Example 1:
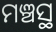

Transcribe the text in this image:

ମଞ୍ଚସ୍ଥ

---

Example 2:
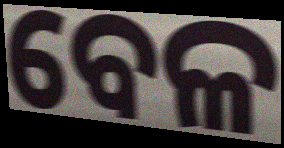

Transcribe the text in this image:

ବେଳ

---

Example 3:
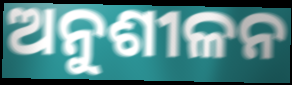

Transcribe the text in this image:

ଅନୁଶୀଳନ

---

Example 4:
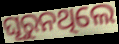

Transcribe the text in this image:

ଘୂରୁନଥିଲେ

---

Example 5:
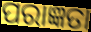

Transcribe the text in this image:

ପରାଜ୍ଞତା